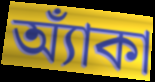
অ্যাঁকা